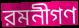
রমনীগণ